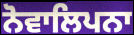
ਨੋਵਾਲਿਪਨਾ